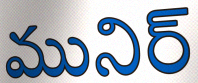
మునిర్